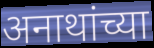
अनाथांच्या